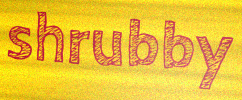
shrubby